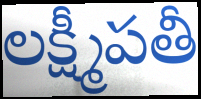
లక్ష్మీపతీ